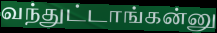
வந்துட்டாங்கன்னு